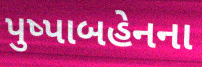
પુષ્પાબહેનના